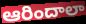
ఆరిందాలా